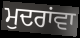
ਮੁਦਰਾਂਵਾ